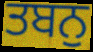
ਤਬਨੁ